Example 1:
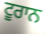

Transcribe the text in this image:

ਟੂਰਾਨ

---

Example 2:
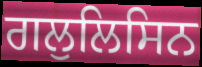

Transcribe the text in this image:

ਗਲੁਲਿਸਿਨ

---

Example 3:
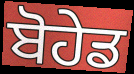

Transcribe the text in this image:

ਬੋਹੇਡ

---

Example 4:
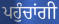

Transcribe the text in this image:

ਪਹੁੰਚਾਂਗੀ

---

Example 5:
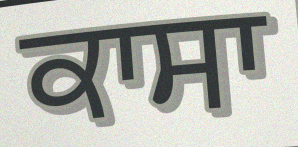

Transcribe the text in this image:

ਕਾਸਾ